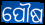
ପୌଷ